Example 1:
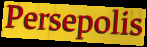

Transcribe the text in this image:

Persepolis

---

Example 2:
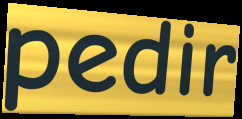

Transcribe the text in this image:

pedir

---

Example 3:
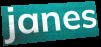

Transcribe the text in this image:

janes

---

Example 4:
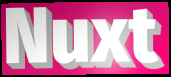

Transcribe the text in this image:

Nuxt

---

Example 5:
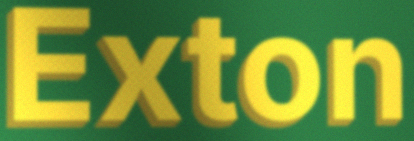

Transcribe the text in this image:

Exton